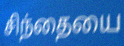
சிந்தையை